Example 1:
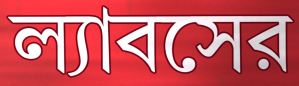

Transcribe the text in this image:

ল্যাবসের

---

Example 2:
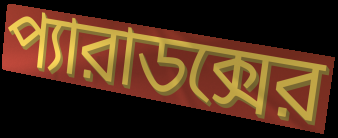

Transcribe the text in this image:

প্যারাডক্সের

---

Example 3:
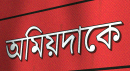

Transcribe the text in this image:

অমিয়দাকে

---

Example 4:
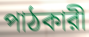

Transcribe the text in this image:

পাঠকারী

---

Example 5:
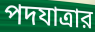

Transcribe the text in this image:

পদযাত্রার